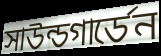
সাউন্ডগার্ডেন